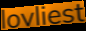
lovliest